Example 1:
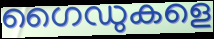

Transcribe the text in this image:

ഗൈഡുകളെ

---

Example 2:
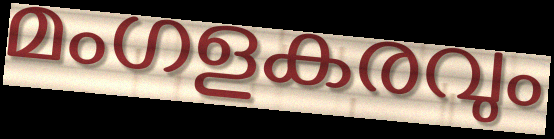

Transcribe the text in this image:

മംഗളകരവും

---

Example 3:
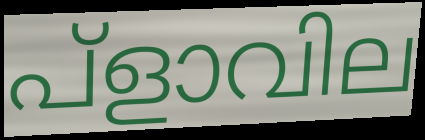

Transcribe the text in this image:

പ്ളാവില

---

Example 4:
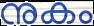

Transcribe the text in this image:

നുകം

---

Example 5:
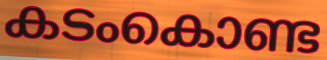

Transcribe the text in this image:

കടംകൊണ്ട